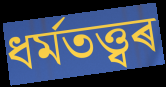
ধৰ্মতত্ত্বৰ